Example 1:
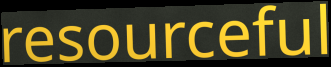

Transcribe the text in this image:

resourceful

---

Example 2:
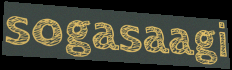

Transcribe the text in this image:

sogasaagi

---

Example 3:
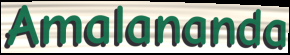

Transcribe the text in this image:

Amalananda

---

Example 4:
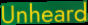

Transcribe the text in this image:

Unheard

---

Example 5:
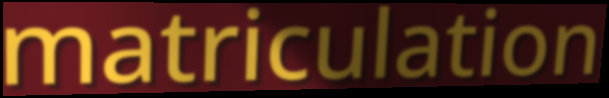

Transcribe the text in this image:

matriculation